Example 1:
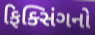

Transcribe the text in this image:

ફિક્સિંગનો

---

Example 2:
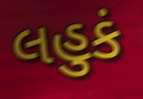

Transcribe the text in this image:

લહુકં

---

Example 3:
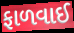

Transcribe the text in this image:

ફાળવાઈ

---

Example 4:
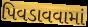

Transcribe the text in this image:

પિવડાવવામાં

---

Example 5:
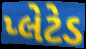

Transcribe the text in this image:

પ્લેટેડ